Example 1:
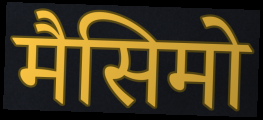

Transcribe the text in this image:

मैसिमो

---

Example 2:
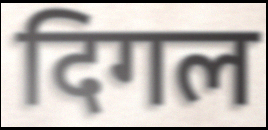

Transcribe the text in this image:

दिगल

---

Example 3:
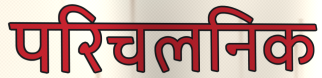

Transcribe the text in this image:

परिचलनिक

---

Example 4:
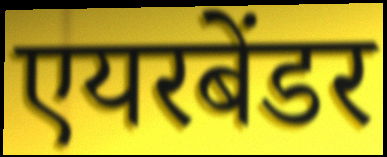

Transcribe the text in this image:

एयरबेंडर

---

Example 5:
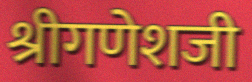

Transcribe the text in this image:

श्रीगणेशजी